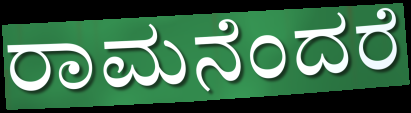
ರಾಮನೆಂದರೆ